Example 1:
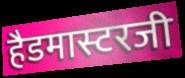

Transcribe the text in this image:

हैडमास्टरजी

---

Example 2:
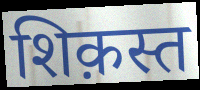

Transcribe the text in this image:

शिक़स्त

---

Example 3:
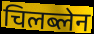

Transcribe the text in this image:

चिलब्लेन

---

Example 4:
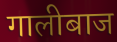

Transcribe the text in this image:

गालीबाज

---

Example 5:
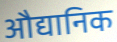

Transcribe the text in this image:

औद्यानिक